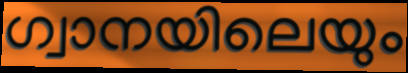
ഗ്വാനയിലെയും